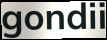
gondii